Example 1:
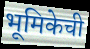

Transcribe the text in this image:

भूमिकेची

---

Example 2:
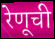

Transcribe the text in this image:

रेणूची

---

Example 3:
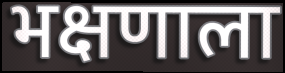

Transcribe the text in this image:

भक्षणाला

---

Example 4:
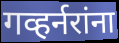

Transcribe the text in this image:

गव्हर्नरांना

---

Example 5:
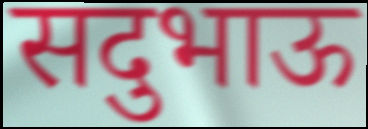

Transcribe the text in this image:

सदुभाऊ